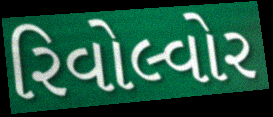
રિવોલ્વોર